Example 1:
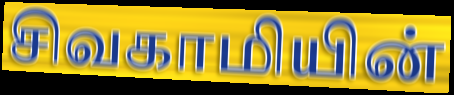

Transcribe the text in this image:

சிவகாமியின்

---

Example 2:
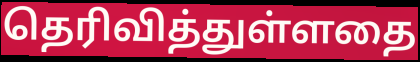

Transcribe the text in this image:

தெரிவித்துள்ளதை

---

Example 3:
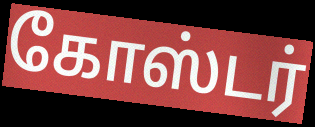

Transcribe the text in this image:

கோஸ்டர்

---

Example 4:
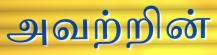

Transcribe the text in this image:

அவற்றின்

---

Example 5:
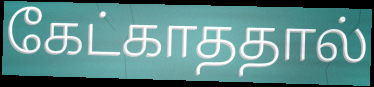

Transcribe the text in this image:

கேட்காததால்